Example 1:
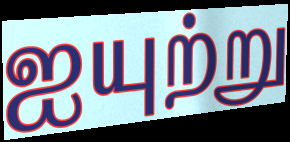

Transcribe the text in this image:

ஐயுற்று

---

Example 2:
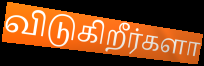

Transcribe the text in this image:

விடுகிறீர்களா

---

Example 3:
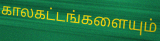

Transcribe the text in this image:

காலகட்டங்களையும்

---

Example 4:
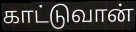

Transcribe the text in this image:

காட்டுவான்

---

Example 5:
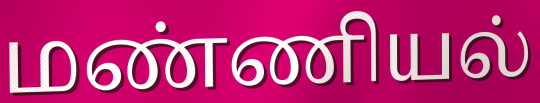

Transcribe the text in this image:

மண்ணியல்